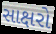
સાક્ષરો